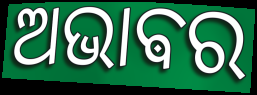
ଅଭାଵର